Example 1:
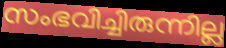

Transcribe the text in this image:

സംഭവിച്ചിരുന്നില്ല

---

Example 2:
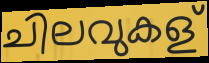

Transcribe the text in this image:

ചിലവുകള്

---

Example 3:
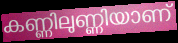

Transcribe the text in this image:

കണ്ണിലുണ്ണിയാണ്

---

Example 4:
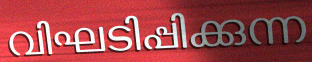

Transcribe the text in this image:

വിഘടിപ്പിക്കുന്ന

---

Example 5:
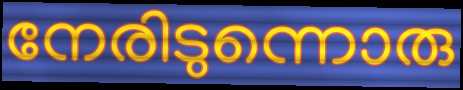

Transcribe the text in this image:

നേരിടുന്നൊരു